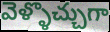
వెళ్ళొచ్చుగా